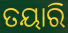
ତୟାରି